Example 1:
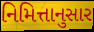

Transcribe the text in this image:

નિમિત્તાનુસાર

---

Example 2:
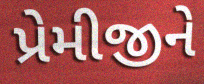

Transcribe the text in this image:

પ્રેમીજીને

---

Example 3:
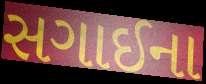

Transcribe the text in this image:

સગાઈના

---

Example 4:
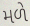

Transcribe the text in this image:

મળે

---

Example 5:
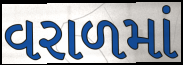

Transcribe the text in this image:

વરાળમાં